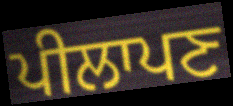
ਪੀਲਾਪਣ